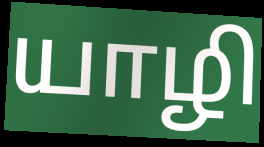
யாழி